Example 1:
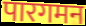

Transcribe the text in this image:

पारगमन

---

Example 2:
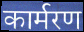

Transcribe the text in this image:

कार्मरण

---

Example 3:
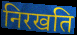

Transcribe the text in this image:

निरखति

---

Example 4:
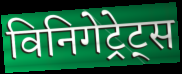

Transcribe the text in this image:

विनिगेट्रेट्स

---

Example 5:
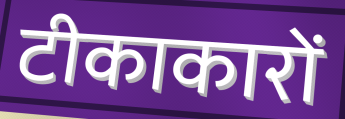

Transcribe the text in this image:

टीकाकारों